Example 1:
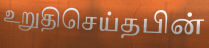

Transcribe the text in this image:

உறுதிசெய்தபின்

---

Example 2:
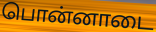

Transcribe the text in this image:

பொன்னாடை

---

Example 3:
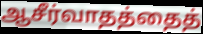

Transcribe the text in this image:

ஆசீர்வாதத்தைத்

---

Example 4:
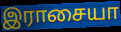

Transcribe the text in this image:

இராசையா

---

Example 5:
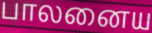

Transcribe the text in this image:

பாலனைய